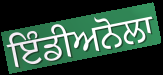
ਇੰਡੀਅਨੋਲਾ